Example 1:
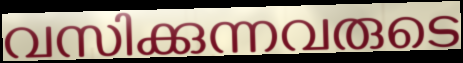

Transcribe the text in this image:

വസിക്കുന്നവരുടെ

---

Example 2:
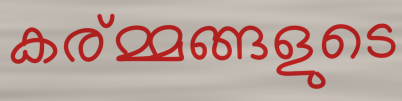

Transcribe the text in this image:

കര്മ്മങ്ങളുടെ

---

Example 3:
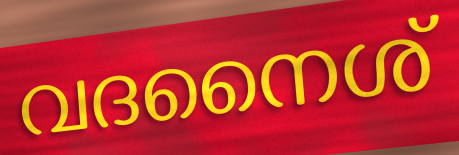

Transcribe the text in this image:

വദനൈശ്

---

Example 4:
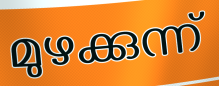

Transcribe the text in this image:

മുഴക്കുന്ന്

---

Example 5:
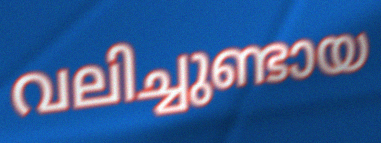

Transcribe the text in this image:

വലിച്ചുണ്ടായ